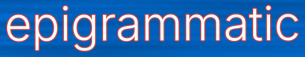
epigrammatic